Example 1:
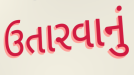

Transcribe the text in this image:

ઉતારવાનું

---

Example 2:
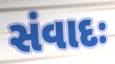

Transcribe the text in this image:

સંવાદઃ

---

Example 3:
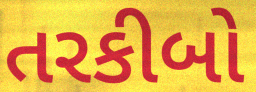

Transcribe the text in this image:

તરકીબો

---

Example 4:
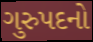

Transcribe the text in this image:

ગુરુપદનો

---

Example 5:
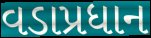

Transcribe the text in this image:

વડાપ્રધાન